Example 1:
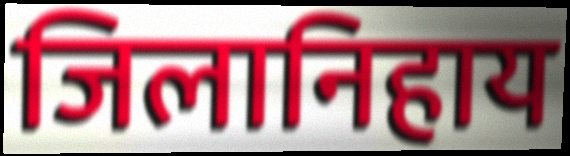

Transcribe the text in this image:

जिलानिहाय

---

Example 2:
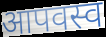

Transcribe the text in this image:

आपवस्व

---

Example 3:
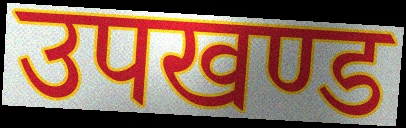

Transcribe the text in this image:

उपखण्ड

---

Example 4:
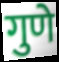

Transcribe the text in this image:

गुणे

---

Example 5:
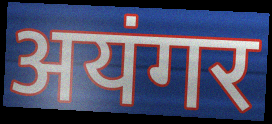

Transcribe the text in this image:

अयंगर